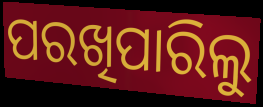
ପରଖିପାରିଲୁ